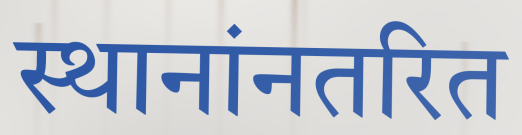
स्थानांनतरित